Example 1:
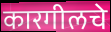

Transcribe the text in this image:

कारगीलचे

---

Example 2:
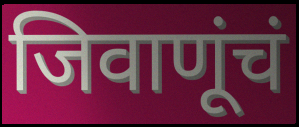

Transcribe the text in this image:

जिवाणूंचं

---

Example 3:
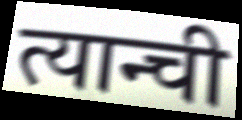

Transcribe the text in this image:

त्यान्ची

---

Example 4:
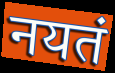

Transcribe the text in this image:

नयतं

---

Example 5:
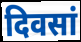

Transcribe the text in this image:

दिवसां